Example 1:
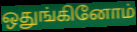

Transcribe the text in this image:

ஒதுங்கினோம்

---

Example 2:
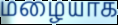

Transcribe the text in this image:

மழையாக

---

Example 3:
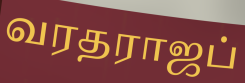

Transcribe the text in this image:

வரதராஜப்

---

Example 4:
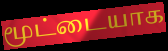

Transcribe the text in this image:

மூட்டையாக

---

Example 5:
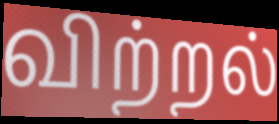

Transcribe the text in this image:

விற்றல்